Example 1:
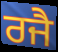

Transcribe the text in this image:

ਰਜੈ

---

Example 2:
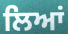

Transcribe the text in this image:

ਲਿਆਂ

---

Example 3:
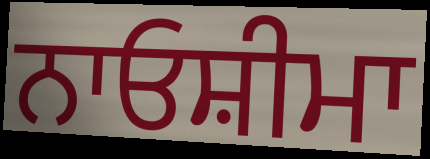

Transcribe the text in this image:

ਨਾਓਸ਼ੀਮਾ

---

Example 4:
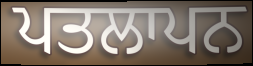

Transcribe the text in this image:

ਪਤਲਾਪਨ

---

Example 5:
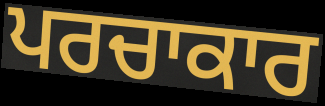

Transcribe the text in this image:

ਪਰਚਾਕਾਰ